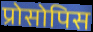
प्रोसोपिस